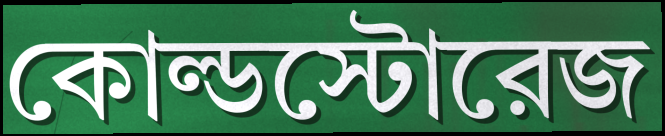
কোল্ডস্টোরেজ